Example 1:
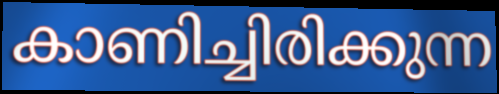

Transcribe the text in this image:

കാണിച്ചിരിക്കുന്ന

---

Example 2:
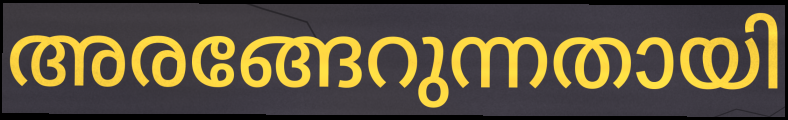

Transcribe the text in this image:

അരങ്ങേറുന്നതായി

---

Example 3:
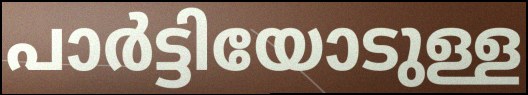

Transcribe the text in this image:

പാർട്ടിയോടുള്ള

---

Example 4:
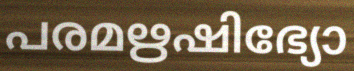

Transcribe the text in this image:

പരമഋഷിഭ്യോ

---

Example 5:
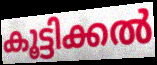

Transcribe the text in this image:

കൂട്ടിക്കൽ